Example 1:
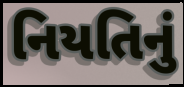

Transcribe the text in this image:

નિયતિનું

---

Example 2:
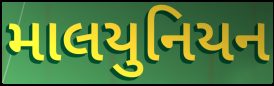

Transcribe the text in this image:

માલયુનિયન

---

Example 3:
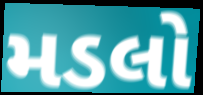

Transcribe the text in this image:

મડલો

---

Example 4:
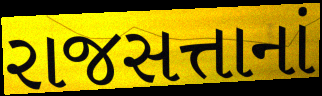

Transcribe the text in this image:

રાજસત્તાનાં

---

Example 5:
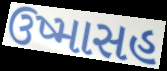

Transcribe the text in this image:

ઉષ્માસહ